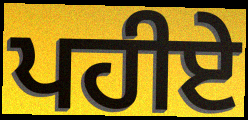
ਪਹੀਏ